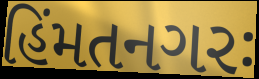
હિંમતનગરઃ